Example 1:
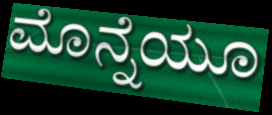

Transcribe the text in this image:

ಮೊನ್ನೆಯೂ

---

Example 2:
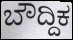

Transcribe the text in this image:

ಬೌದ್ದಿಕ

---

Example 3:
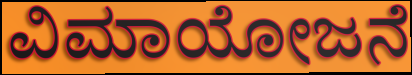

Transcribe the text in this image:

ವಿಮಾಯೋಜನೆ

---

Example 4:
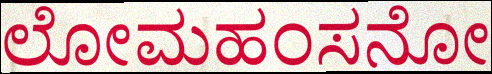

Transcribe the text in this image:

ಲೋಮಹಂಸನೋ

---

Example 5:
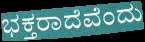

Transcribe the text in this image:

ಭಕ್ತರಾದೆವೆಂದು